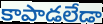
కాపాడలేడా